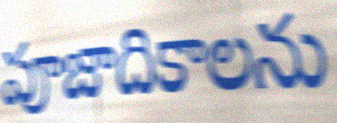
పూజాదికాలను